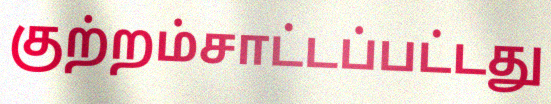
குற்றம்சாட்டப்பட்டது